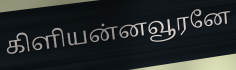
கிளியன்னவூரனே